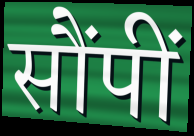
सौंपीं